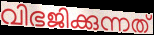
വിഭജിക്കുന്നത്